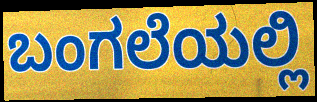
ಬಂಗಲೆಯಲ್ಲಿ